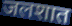
जलशात